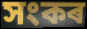
সংকৰ